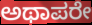
ಅಥಾಪರೇ